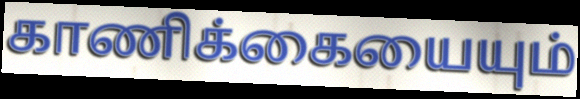
காணிக்கையையும்